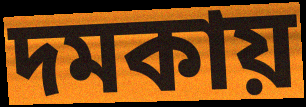
দমকায়